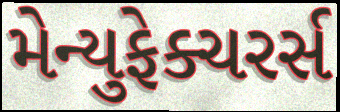
મેન્યુફેક્ચરર્સ